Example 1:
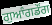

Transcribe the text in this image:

ਗੁਆੰਗਡੌਂਗ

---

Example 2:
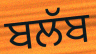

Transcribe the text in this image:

ਬਲੱਬ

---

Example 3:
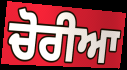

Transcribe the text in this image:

ਚੋਰੀਆ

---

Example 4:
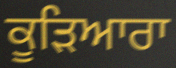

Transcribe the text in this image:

ਕੂੜਿਆਰਾ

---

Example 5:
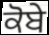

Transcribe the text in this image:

ਕੋਬੇ